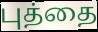
புத்தை